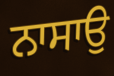
ਨਾਸਾਉ